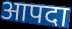
आपदा